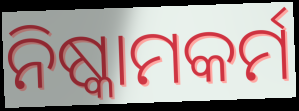
ନିଷ୍କାମକର୍ମ